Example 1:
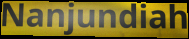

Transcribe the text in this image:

Nanjundiah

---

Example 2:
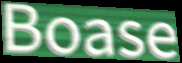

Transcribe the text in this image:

Boase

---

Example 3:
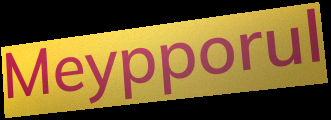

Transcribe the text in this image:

Meypporul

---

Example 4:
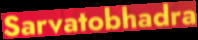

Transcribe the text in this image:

Sarvatobhadra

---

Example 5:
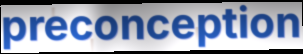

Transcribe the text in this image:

preconception